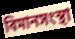
বিমানসংস্থা